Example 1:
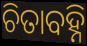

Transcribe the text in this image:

ଚିତାବହ୍ନି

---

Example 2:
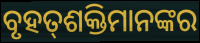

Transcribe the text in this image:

ବୃହତ୍‍ଶକ୍ତିମାନଙ୍କର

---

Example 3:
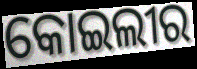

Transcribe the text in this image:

କୋଇଲୀର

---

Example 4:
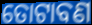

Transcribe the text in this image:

ତୋଟାବଣ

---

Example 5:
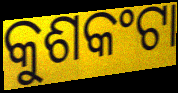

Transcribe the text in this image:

କୁଶକଂଟା